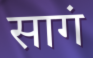
सागं